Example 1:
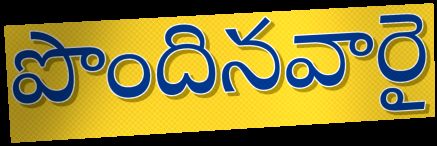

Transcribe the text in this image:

పొందినవారై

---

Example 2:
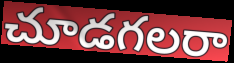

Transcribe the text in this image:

చూడగలరా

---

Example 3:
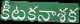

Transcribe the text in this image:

కీటకనాశక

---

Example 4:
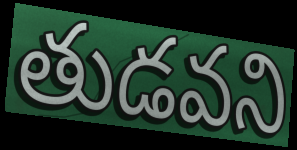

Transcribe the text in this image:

తుడవని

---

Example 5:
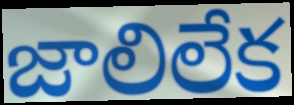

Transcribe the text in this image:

జాలిలేక